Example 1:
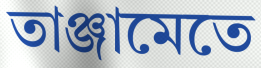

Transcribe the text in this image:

তাঞ্জামেতে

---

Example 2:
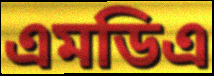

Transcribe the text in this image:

এমডিএ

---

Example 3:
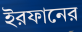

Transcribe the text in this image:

ইরফানের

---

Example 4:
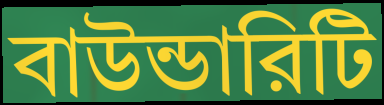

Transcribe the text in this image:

বাউন্ডারিটি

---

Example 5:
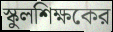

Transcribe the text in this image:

স্কুলশিক্ষকের